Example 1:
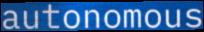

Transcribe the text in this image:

autonomous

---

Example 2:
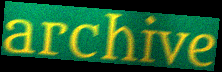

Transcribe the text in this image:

archive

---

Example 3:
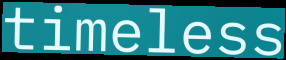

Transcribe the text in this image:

timeless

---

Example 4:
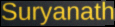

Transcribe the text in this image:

Suryanath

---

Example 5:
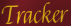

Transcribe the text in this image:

Tracker